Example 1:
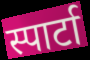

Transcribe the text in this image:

स्पार्टा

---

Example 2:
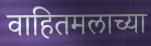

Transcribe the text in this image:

वाहितमलाच्या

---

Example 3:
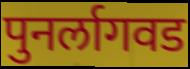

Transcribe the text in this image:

पुनर्लागवड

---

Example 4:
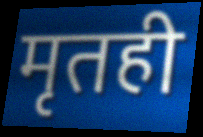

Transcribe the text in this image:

मृतही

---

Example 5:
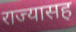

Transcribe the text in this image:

राज्यासह